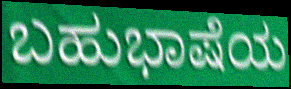
ಬಹುಭಾಷೆಯ